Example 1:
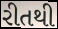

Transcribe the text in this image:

રીતથી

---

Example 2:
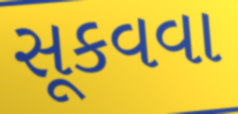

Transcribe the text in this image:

સૂકવવા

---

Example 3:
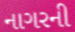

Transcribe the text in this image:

નાગરની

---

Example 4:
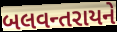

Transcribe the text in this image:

બલવન્તરાયને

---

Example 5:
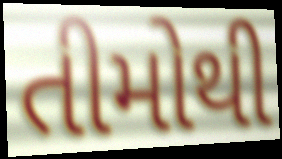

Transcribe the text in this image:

તીમોથી